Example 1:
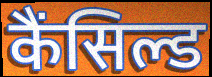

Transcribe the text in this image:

कैंसिल्ड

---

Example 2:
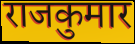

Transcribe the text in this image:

राजकुमार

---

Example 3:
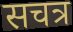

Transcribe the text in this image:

सचत्र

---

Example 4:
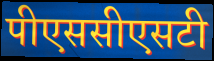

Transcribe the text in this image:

पीएससीएसटी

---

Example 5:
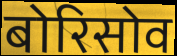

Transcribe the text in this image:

बोरिसोव